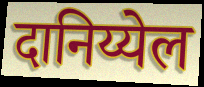
दानिय्येल